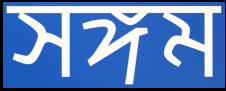
সঙ্গম